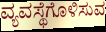
ವ್ಯವಸ್ಥೆಗೊಳಿಸುವ